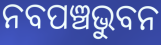
ନବପଞ୍ଚଭୁବନ